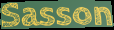
Sasson